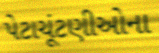
પેટાચૂંટણીઓના